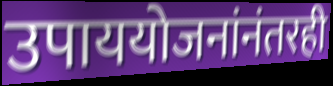
उपाययोजनांनंतरही